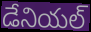
డేనియల్